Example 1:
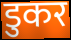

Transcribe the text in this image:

डुकर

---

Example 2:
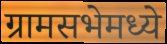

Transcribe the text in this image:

ग्रामसभेमध्ये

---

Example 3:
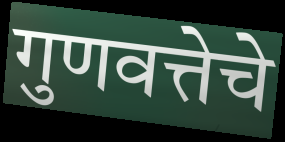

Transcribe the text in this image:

गुणवत्तेचे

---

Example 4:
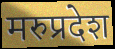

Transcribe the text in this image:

मरुप्रदेश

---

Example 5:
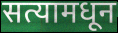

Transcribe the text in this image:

सत्यामधून